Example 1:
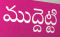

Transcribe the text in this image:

ముద్దెట్టి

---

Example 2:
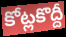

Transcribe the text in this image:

కోట్లకొద్దీ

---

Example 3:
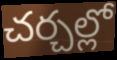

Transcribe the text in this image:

చర్చల్లో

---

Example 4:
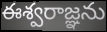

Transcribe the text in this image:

ఈశ్వరాజ్ఞను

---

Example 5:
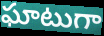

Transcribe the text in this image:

ఘాటుగా